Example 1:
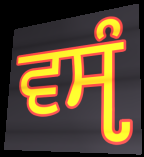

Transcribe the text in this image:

ਵਸੵੰ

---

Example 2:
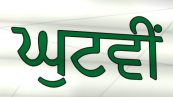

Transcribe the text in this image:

ਘੁਟਵੀਂ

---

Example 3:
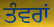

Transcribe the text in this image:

ਤੰਵਰਾਂ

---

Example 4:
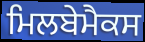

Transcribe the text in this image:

ਮਿਲਬੇਮੈਕਸ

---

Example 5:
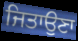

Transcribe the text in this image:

ਜਿਤਾਉਣਾ